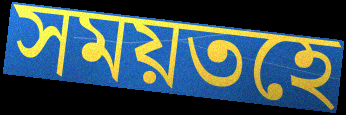
সময়তহে